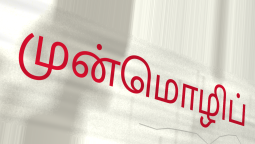
முன்மொழிப்